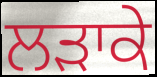
ਲੜਾਕੇ